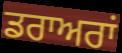
ਡਰਾਅਰਾਂ